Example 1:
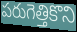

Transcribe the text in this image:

పరుగెత్తికొని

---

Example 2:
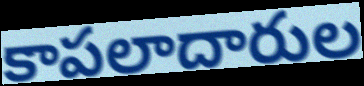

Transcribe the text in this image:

కాపలాదారుల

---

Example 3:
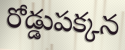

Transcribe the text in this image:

రోడ్డుపక్కన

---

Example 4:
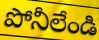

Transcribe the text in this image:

పోనీలేండి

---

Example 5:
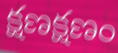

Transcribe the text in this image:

క్షణక్షణం